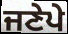
ਜਣੇਪੇ